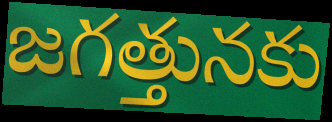
జగత్తునకు